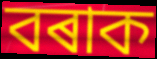
বৰাক